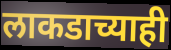
लाकडाच्याही